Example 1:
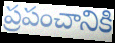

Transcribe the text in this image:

ప్రపంచానికి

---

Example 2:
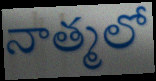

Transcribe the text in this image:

నాత్మలో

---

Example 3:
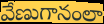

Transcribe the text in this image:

వేణుగానంలా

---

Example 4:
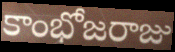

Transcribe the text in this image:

కాంభోజరాజు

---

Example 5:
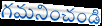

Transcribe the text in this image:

గమనించండి